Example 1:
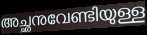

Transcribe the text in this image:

അച്ഛനുവേണ്ടിയുള്ള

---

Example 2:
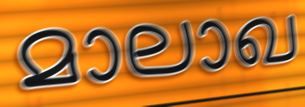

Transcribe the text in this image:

മാലാഖ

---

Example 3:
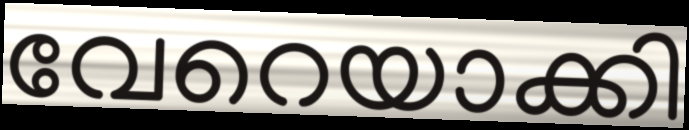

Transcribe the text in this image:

വേറെയാക്കി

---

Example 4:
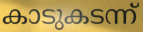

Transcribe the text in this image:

കാടുകടന്ന്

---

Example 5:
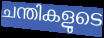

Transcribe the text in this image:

ചന്തികളുടെ